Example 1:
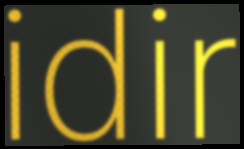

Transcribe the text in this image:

idir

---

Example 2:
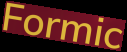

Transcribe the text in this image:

Formic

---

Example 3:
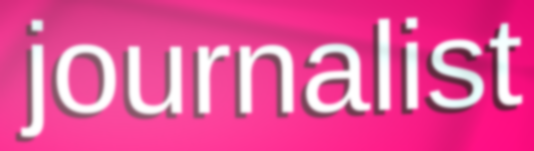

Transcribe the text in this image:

journalist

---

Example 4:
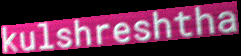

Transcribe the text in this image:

kulshreshtha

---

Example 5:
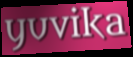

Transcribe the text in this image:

yuvika